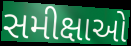
સમીક્ષાઓ